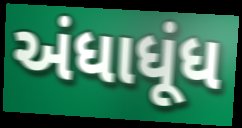
અંધાધૂંધ